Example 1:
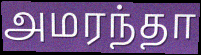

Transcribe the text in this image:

அமரந்தா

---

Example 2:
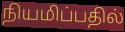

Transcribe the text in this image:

நியமிப்பதில்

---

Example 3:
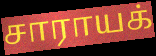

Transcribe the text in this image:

சாராயக்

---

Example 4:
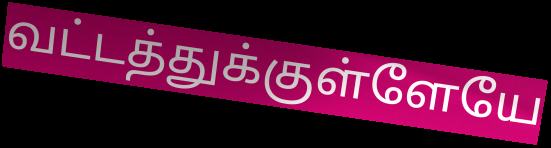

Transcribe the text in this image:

வட்டத்துக்குள்ளேயே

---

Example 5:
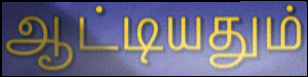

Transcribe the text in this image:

ஆட்டியதும்